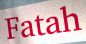
Fatah